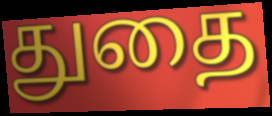
துதை